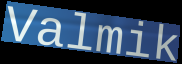
Valmik